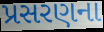
પ્રસરણના